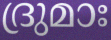
ദ്രുമാഃ